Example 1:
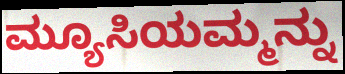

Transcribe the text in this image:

ಮ್ಯೂಸಿಯಮ್ಮನ್ನು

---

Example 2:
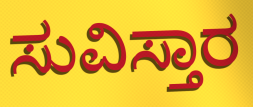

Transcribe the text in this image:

ಸುವಿಸ್ತಾರ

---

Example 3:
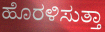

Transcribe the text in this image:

ಹೊರಳಿಸುತ್ತಾ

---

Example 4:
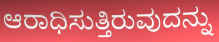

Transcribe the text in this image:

ಆರಾಧಿಸುತ್ತಿರುವುದನ್ನು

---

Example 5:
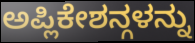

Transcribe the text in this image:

ಅಪ್ಲಿಕೇಶನ್ಗಳನ್ನು